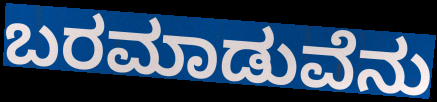
ಬರಮಾಡುವೆನು